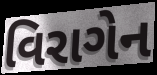
વિરાગેન